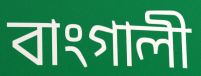
বাংগালী